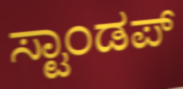
ಸ್ಟಾಂಡಪ್